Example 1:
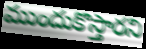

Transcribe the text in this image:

ముందుకొస్తారని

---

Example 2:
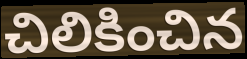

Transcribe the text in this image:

చిలికించిన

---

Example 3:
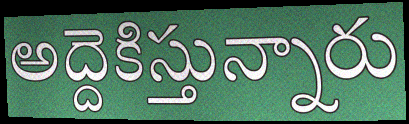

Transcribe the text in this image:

అద్దెకిస్తున్నారు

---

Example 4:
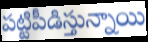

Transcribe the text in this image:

పట్టిపీడిస్తున్నాయి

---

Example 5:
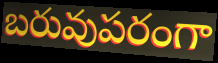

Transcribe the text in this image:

బరువుపరంగా